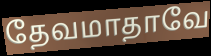
தேவமாதாவே